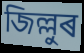
জিল্লুৰ